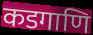
कडगाणि